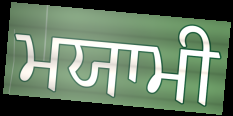
ਮਯਾਮੀ